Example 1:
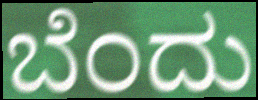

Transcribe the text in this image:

ಬೆಂದು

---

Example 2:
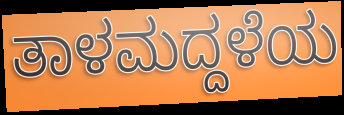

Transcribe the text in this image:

ತಾಳಮದ್ದಳೆಯ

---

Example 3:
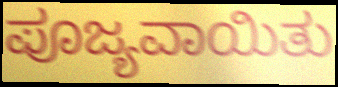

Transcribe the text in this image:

ಪೂಜ್ಯವಾಯಿತು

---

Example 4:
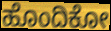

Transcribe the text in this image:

ಹೊಂದಿಕೋ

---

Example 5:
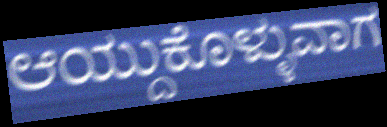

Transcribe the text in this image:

ಆಯ್ದುಕೊಳ್ಳುವಾಗ